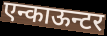
एन्काऊन्टर